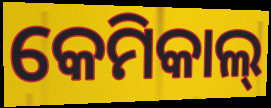
କେମିକାଲ୍